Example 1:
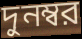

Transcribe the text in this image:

দুনম্বর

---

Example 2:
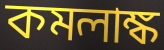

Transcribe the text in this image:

কমলাঙ্ক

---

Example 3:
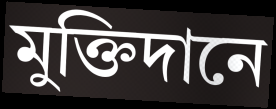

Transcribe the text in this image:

মুক্তিদানে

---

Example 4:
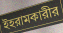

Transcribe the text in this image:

ইহরামকারীর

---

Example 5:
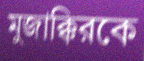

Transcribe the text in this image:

মুজাক্কিরকে